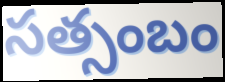
సత్సంబం